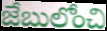
జేబులోంచి